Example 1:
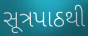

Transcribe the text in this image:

સૂત્રપાઠથી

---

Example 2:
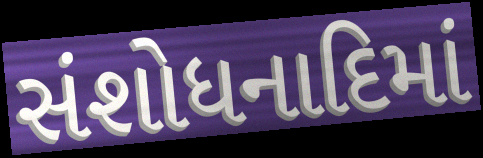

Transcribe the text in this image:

સંશોધનાદિમાં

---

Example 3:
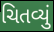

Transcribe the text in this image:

ચિતવ્યું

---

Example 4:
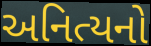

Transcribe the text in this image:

અનિત્યનો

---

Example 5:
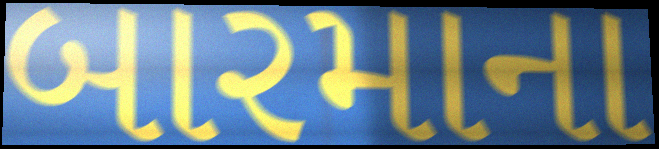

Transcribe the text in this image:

બારમાના